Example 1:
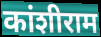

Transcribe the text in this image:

कांशीराम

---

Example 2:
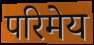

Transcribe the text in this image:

परिमेय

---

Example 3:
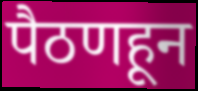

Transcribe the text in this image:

पैठणहून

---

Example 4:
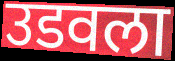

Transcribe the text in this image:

उडवला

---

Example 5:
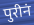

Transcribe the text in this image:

पुरीनं